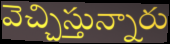
వెచ్చిస్తున్నారు